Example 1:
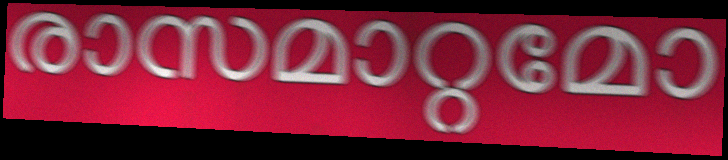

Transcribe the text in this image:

രാസമാറ്റമോ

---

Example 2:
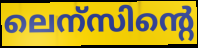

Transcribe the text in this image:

ലെന്സിന്റെ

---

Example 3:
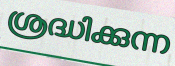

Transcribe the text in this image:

ശ്രദ്ധിക്കുന്ന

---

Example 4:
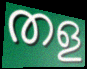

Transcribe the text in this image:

തള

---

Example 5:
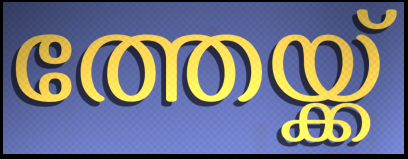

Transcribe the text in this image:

ത്തേയ്ക്ക്